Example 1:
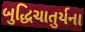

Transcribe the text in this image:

બુદ્ધિચાતુર્યના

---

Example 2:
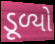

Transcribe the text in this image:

ડૂળ્યો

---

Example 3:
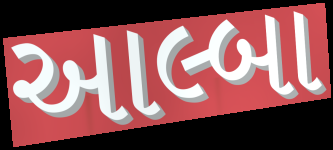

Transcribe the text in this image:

આલ્બા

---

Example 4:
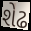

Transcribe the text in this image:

શેઢ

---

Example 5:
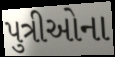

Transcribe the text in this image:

પુત્રીઓના